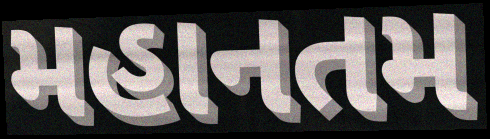
મહાનતમ